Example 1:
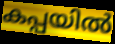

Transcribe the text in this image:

കപ്പയിൽ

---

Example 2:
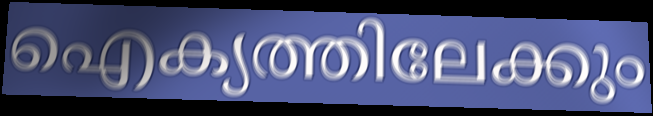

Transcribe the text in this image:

ഐക്യത്തിലേക്കും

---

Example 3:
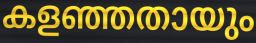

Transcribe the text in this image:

കളഞ്ഞതായും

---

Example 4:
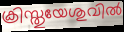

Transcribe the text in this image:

ക്രിസ്തുയേശുവിൽ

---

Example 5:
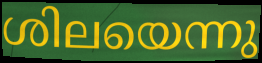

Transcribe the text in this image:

ശിലയെന്നു